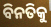
ବିନତିକୁ